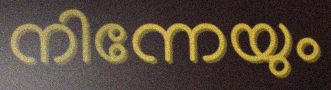
നിന്നേയും